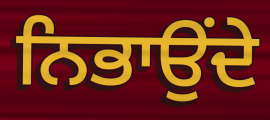
ਨਿਭਾਉਂਦੇ